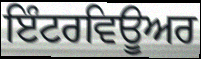
ਇੰਟਰਵਿਊਅਰ